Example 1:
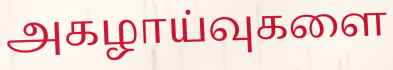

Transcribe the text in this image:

அகழாய்வுகளை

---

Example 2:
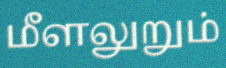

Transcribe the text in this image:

மீளலுறும்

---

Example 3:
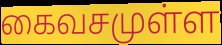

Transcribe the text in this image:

கைவசமுள்ள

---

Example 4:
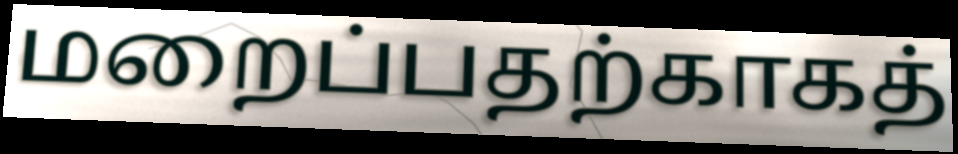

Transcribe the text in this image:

மறைப்பதற்காகத்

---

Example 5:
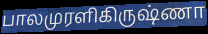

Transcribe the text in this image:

பாலமுரளிகிருஷ்ணா